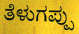
ತೆಳುಗಪ್ಪು